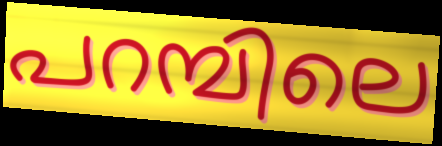
പറമ്പിലെ